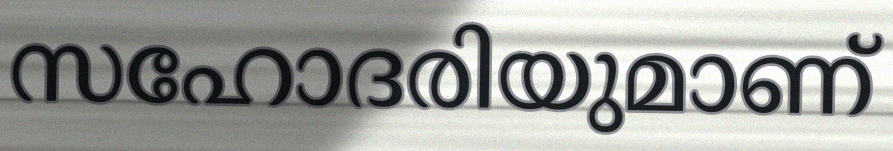
സഹോദരിയുമാണ്